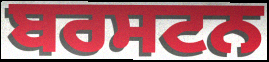
ਬਰਸਟਨ